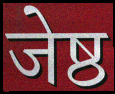
जेष्ठ